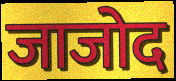
जाजोद